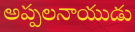
అప్పలనాయుడు